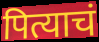
पित्याचं